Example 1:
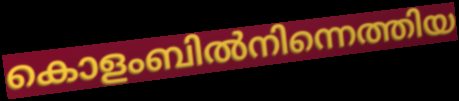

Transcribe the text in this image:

കൊളംബിൽനിന്നെത്തിയ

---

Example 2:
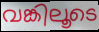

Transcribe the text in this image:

വങ്കിലൂടെ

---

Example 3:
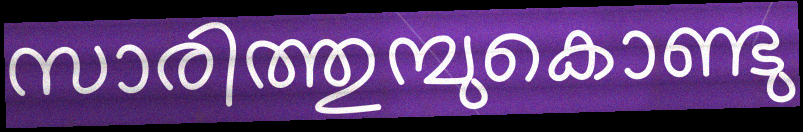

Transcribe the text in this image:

സാരിത്തുമ്പുകൊണ്ടു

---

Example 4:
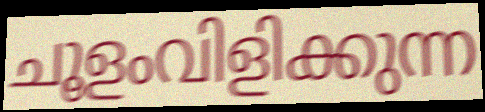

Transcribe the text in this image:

ചൂളംവിളിക്കുന്ന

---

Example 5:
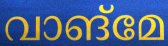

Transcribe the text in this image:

വാങ്മേ